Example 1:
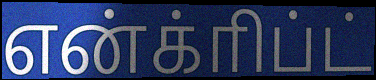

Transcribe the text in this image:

என்க்ரிப்ட்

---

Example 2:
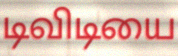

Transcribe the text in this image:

டிவிடியை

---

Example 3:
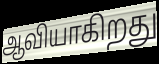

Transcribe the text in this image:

ஆவியாகிறது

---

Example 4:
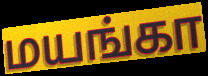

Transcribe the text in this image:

மயங்கா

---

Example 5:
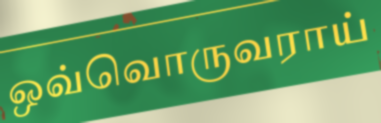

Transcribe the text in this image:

ஒவ்வொருவராய்